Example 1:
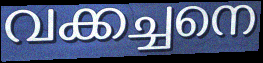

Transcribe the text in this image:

വക്കച്ചനെ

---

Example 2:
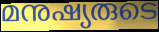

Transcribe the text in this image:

മനുഷ്യരുടെ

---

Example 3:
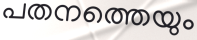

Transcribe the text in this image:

പതനത്തെയും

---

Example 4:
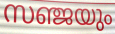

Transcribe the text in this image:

സഞ്ജയും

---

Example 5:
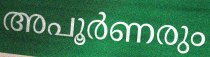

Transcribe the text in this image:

അപൂർണരും